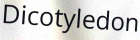
Dicotyledon